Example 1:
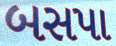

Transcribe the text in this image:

બસપા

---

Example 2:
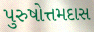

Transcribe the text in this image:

પુરુષોત્તમદાસ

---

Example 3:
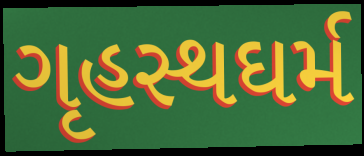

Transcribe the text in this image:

ગૃહસ્થઘર્મ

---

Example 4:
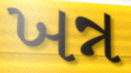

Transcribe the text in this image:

ખન્ન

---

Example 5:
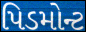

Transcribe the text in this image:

પિડમોન્ટ